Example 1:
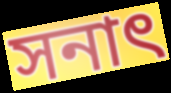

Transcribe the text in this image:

সনাৎ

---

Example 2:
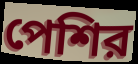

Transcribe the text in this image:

পেশির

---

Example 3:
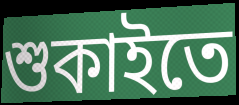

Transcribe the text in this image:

শুকাইতে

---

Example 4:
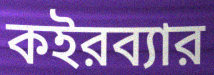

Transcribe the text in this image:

কইরব্যার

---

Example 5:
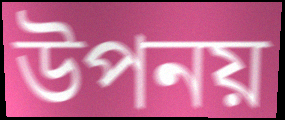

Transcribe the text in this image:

উপনয়